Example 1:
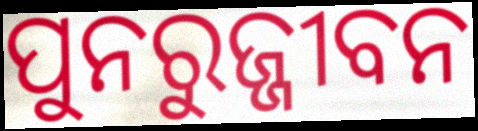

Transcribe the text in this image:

ପୁନରୁଜ୍ଜୀବନ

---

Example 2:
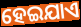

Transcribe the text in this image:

ହେଇଯାଏ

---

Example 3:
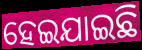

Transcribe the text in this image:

ହେଇଯାଇଛି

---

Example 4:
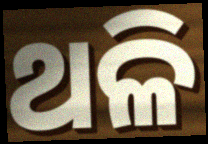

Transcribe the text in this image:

ଥଳି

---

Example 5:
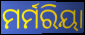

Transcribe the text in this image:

ମର୍ମରିୟା